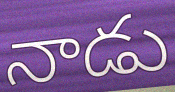
నాడు